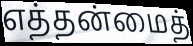
எத்தன்மைத்